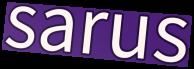
sarus